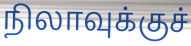
நிலாவுக்குச்